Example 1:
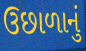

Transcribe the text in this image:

ઉછાળાનું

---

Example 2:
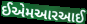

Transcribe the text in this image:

ઈએમઆરઆઈ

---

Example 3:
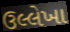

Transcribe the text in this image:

ઉલ્લેખા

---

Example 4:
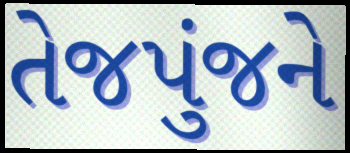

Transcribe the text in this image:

તેજપુંજને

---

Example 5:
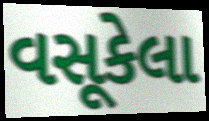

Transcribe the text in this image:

વસૂકેલા